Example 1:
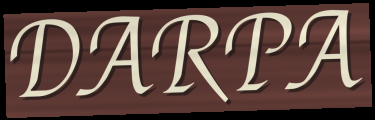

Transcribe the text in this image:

DARPA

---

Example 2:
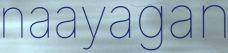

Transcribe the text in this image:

naayagan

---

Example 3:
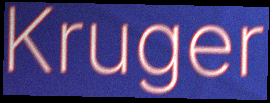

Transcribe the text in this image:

Kruger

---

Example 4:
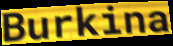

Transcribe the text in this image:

Burkina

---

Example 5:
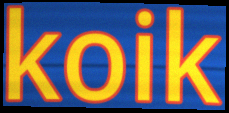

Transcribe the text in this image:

koik